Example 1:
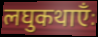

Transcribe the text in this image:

लघुकथाएँः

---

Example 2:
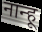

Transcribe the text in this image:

नान्हू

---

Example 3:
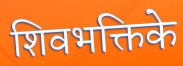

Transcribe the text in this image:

शिवभक्तिके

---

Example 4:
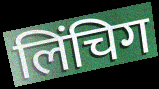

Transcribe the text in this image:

लिंचिग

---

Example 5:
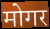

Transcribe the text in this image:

मोगर